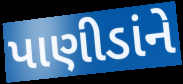
પાણીડાંને